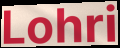
Lohri